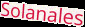
Solanales